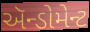
ઍન્ડોમેન્ટ